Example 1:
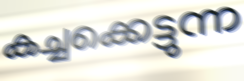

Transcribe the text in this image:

കച്ചക്കെട്ടുന്ന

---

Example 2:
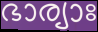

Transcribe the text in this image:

ഭാര്യാഃ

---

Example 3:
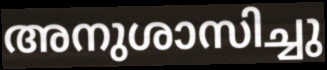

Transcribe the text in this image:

അനുശാസിച്ചു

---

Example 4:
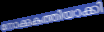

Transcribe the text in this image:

നോക്കുകുത്തിയാക്കി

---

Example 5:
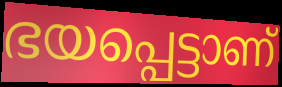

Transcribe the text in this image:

ഭയപ്പെട്ടാണ്